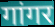
गांगर